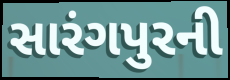
સારંગપુરની